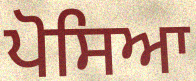
ਪੋਸਿਆ